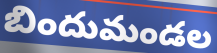
బిందుమండల